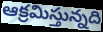
ఆక్రమిస్తున్నది